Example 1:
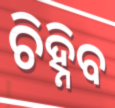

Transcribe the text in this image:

ଚିହ୍ନିବ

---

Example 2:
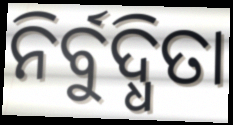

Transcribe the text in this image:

ନିର୍ବୁଦ୍ଧିତା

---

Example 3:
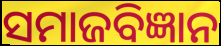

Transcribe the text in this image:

ସମାଜବିଜ୍ଞାନ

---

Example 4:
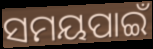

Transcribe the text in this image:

ସମୟପାଇଁ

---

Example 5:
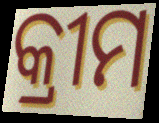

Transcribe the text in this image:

କ୍ରୀମ